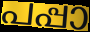
പപ്പാ